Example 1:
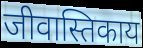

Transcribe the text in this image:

जीवास्तिकाय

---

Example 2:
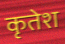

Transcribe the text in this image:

कृतेश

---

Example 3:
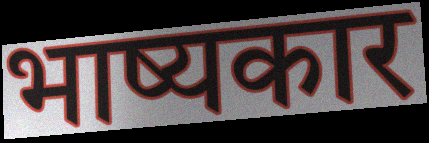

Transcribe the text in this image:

भाष्यकार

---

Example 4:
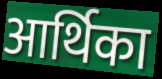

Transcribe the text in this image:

आर्थिका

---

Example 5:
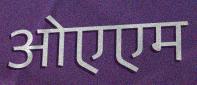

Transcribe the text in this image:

ओएएम